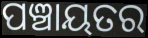
ପଞ୍ଚାୟତର